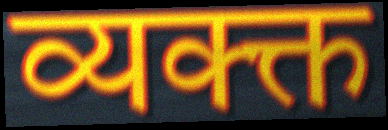
व्यक्क्त